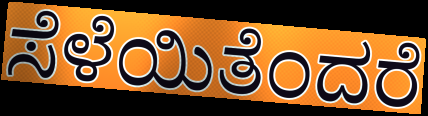
ಸೆಳೆಯಿತೆಂದರೆ